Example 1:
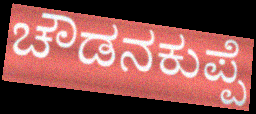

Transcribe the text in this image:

ಚೌಡನಕುಪ್ಪೆ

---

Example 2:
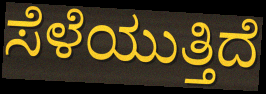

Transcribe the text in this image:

ಸೆಳೆಯುತ್ತಿದೆ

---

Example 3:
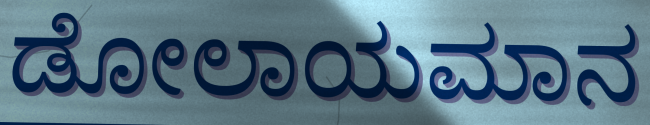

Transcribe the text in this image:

ಡೋಲಾಯಮಾನ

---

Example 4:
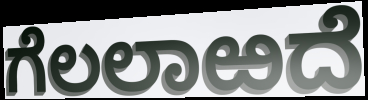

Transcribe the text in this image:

ಗೆಲಲಾಱದೆ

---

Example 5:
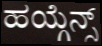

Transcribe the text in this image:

ಹಯ್ಗೆನ್ಸ್